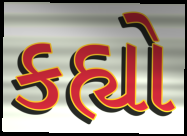
કહ્યો